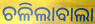
ଚଳିଲାବାଲା